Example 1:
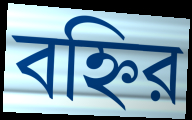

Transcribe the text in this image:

বহ্নির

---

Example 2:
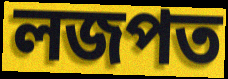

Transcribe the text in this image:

লজপত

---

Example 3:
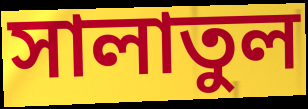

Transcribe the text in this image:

সালাতুল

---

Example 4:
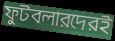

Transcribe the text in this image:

ফুটবলারদেরই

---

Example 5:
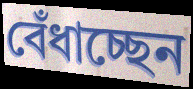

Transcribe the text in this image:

বেঁধাচ্ছেন